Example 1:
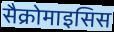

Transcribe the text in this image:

सैक्रोमाइसिस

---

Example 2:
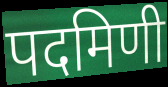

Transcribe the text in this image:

पदमिणी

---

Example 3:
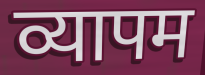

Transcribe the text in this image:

व्यापम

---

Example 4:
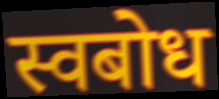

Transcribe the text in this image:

स्वबोध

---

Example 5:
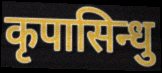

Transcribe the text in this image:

कृपासिन्धु